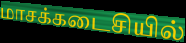
மாசக்கடைசியில்